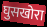
घुसखोरा